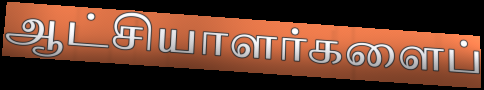
ஆட்சியாளர்களைப்